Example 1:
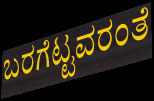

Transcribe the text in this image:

ಬರಗೆಟ್ಟವರಂತೆ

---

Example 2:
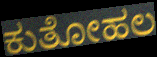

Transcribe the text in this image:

ಕುತೋಹಲ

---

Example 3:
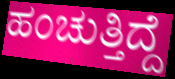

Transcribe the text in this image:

ಹಂಚುತ್ತಿದ್ದೆ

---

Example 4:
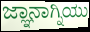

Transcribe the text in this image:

ಜ್ಞಾನಾಗ್ನಿಯು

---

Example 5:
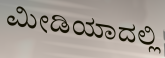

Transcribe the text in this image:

ಮೀಡಿಯಾದಲ್ಲಿ